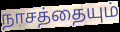
நாசத்தையும்